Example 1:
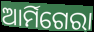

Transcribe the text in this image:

ଆର୍ମିଗେରା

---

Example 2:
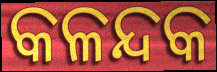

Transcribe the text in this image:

କଳନ୍ଦକ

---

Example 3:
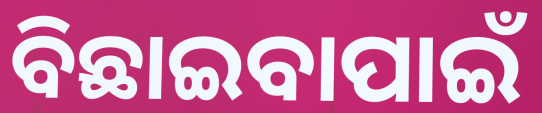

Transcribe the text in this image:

ବିଛାଇବାପାଇଁ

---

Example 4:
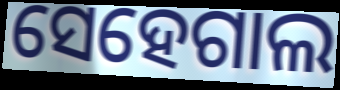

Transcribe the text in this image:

ସେହେଗାଲ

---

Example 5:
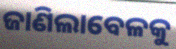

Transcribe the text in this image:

ଜାଣିଲାବେଳକୁ